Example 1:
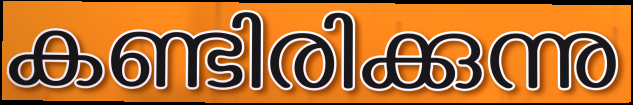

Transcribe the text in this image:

കണ്ടിരിക്കുന്നു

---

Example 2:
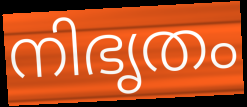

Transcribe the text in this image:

നിഭൃതം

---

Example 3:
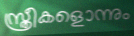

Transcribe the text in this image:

സ്ത്രീകളൊന്നും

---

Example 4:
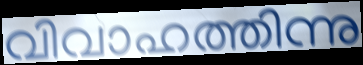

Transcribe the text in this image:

വിവാഹത്തിന്നു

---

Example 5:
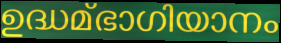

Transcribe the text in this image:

ഉദ്ധമ്ഭാഗിയാനം